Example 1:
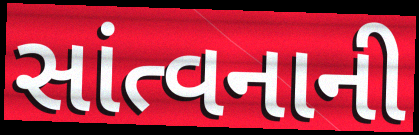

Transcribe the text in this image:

સાંત્વનાની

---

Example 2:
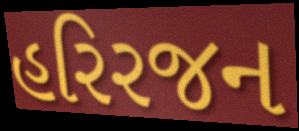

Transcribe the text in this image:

હરિરજન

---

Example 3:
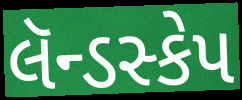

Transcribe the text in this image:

લૅન્ડસ્કેપ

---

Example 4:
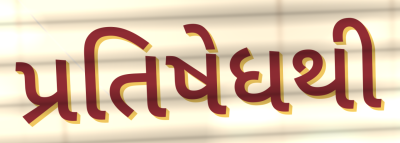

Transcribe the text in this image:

પ્રતિષેધથી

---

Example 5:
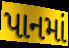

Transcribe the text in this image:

પાનમાં